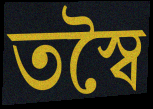
তস্বৈ